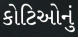
કોટિઓનું